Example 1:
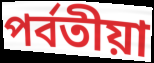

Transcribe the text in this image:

পৰ্বতীয়া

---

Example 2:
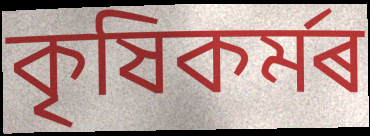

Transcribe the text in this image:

কৃষিকৰ্মৰ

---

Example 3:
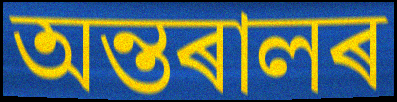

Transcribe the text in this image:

অন্তৰালৰ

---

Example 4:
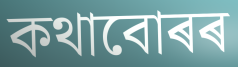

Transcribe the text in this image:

কথাবোৰৰ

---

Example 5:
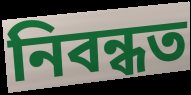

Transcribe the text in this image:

নিবন্ধত